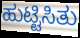
ಹುಟ್ಟಿಸಿತು